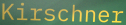
Kirschner